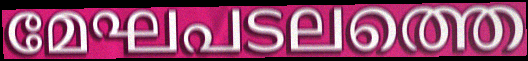
മേഘപടലത്തെ